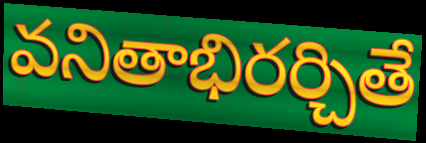
వనితాభిరర్చితే